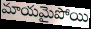
మాయమైపోయి